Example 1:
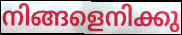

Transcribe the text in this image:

നിങ്ങളെനിക്കു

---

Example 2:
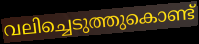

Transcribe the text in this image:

വലിച്ചെടുത്തുകൊണ്ട്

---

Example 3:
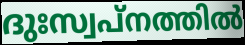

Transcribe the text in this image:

ദുഃസ്വപ്നത്തിൽ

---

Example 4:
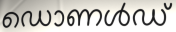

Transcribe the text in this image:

ഡൊണൾഡ്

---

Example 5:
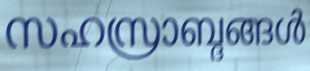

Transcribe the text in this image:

സഹസ്രാബ്ദങ്ങൾ